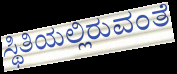
ಸ್ಥಿತಿಯಲ್ಲಿರುವಂತೆ